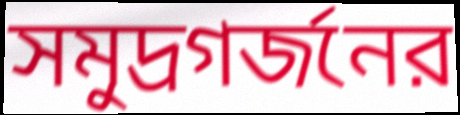
সমুদ্রগর্জনের